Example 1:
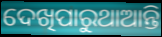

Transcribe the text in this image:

ଦେଖିପାରୁଥାଆନ୍ତି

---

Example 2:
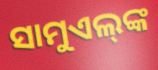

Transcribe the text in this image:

ସାମୁଏଲ୍‌ଙ୍କ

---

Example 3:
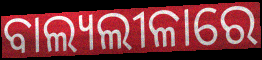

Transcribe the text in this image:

ବାଲ୍ୟଲୀଳାରେ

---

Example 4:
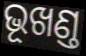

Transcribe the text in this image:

ଭୂଖଣ୍ଡ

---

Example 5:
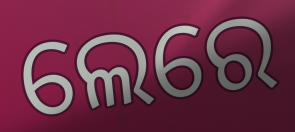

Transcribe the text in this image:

ଲେରେ